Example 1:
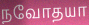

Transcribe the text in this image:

நவோதயா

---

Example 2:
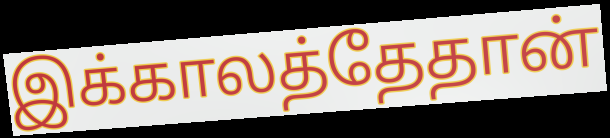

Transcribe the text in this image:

இக்காலத்தேதான்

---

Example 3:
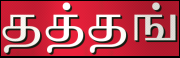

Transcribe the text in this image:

தத்தங்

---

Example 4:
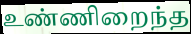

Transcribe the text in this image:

உண்ணிறைந்த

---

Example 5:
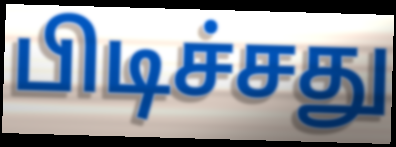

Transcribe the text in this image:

பிடிச்சது